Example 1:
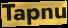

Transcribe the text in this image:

Tapnu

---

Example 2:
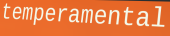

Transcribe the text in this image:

temperamental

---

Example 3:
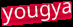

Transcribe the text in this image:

yougya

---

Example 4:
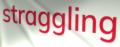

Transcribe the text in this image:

straggling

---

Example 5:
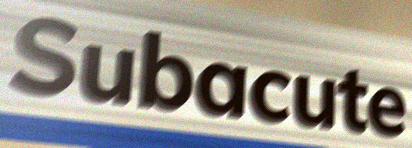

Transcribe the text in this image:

Subacute